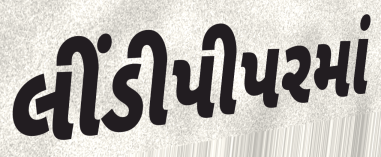
લીંડીપીપરમાં